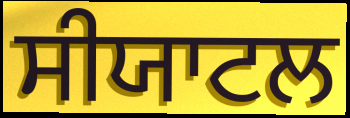
ਸੀਯਾਟਲ